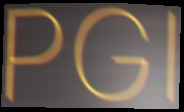
PGI